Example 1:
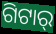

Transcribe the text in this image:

ଗିଟାର୍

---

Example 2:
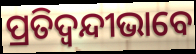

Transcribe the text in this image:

ପ୍ରତିଦ୍ୱନ୍ଦୀଭାବେ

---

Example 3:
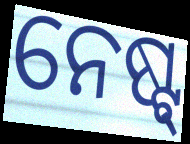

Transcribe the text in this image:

ନେଷ୍ଟ୍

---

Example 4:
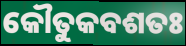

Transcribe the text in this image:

କୌତୁକବଶତଃ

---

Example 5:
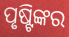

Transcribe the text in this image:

ପୃଷ୍ଟିଙ୍କର